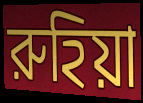
রুহিয়া